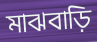
মাঝবাড়ি